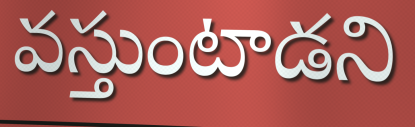
వస్తుంటాడని